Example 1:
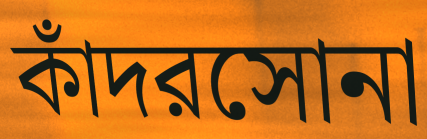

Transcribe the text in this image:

কাঁদরসোনা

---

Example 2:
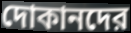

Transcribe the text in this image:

দোকানদের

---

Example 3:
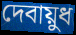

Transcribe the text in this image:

দেবায়ুধ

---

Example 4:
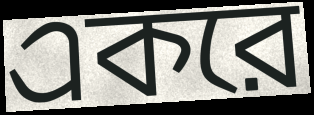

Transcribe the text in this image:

একরে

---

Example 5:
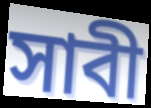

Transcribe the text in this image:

সাবী